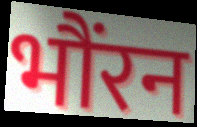
भौंरन